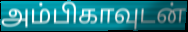
அம்பிகாவுடன்